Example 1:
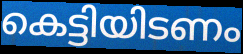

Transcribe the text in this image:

കെട്ടിയിടണം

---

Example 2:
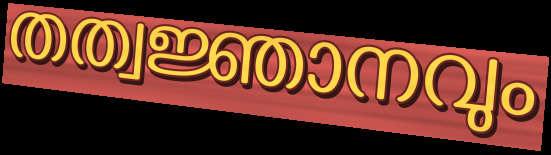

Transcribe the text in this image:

തത്വജ്ഞാനവും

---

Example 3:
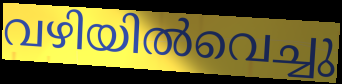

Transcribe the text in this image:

വഴിയിൽവെച്ചു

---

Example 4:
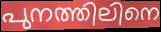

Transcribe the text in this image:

പുനത്തിലിനെ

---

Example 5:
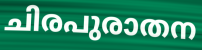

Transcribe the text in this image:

ചിരപുരാതന